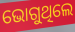
ଭୋଗୁଥିଲେ